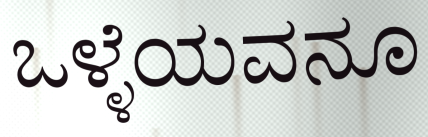
ಒಳ್ಳೆಯವನೂ